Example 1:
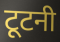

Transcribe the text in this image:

टूटनी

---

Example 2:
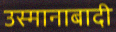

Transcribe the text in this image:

उस्मानाबादी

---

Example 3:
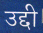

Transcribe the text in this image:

उद्दी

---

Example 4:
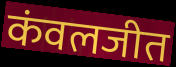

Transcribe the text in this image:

कंवलजीत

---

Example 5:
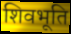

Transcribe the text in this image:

शिवभूति